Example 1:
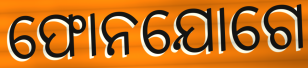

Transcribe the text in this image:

ଫୋନଯୋଗେ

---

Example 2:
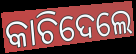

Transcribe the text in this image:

କାଚିଦେଲେ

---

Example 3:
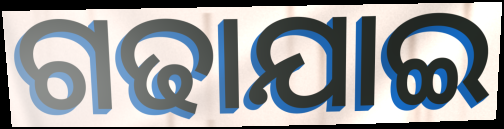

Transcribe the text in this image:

ଗଢାଯାଇ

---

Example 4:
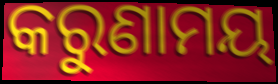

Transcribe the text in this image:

କରୁଣାମୟ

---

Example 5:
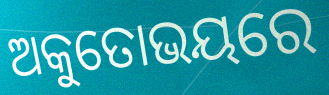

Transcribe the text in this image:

ଅକୁତୋଭୟରେ